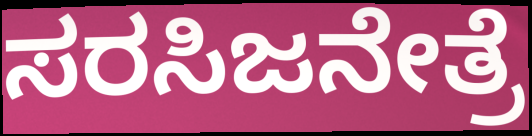
ಸರಸಿಜನೇತ್ರೆ